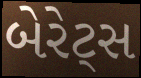
બેરેટ્સ